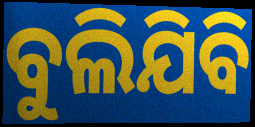
ବୁଲିଯିବି